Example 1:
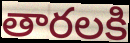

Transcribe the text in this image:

తారలకి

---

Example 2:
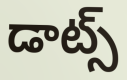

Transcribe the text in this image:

డాట్స్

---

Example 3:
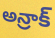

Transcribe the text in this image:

అన్రాక్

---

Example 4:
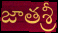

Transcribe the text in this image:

జాతశ్రీ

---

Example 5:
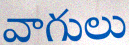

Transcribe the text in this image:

వాగులు